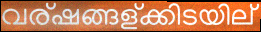
വര്ഷങ്ങള്ക്കിടയില്